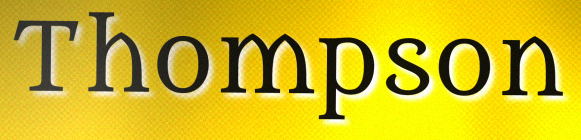
Thompson